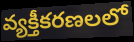
వ్యక్తీకరణలలో